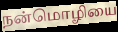
நன்மொழியை